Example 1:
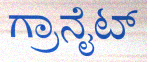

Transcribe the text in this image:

ಗ್ರಾನೈಟ್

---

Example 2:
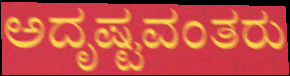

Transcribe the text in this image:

ಅದೃಷ್ಟವಂತರು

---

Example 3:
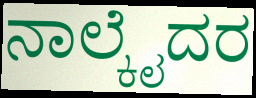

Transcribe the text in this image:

ನಾಲ್ಕೈದರ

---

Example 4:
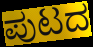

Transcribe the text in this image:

ಪುಟದ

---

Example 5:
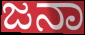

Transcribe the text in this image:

ಜನಾ